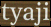
tyaji